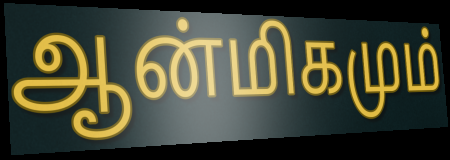
ஆன்மிகமும்